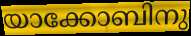
യാക്കോബിനു